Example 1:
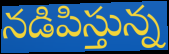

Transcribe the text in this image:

నడిపిస్తున్న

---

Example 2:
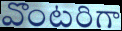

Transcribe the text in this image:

వొంటరిగా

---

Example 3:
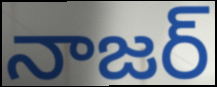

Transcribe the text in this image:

నాజర్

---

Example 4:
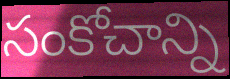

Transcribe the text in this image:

సంకోచాన్ని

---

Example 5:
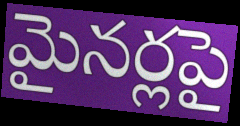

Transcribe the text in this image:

మైనర్లపై